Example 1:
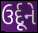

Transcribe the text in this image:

ઉર્દૂને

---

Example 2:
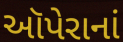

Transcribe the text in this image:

ઑપેરાનાં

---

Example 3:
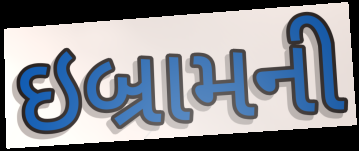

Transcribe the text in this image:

ઇબ્રામની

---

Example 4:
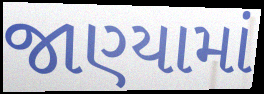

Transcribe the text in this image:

જાણ્યામાં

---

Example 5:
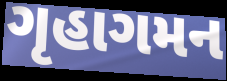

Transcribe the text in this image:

ગૃહાગમન